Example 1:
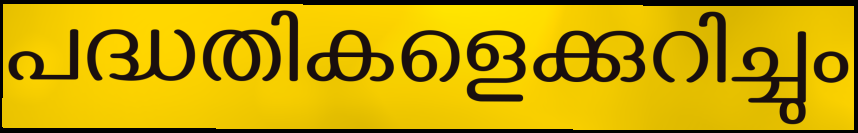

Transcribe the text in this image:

പദ്ധതികളെക്കുറിച്ചും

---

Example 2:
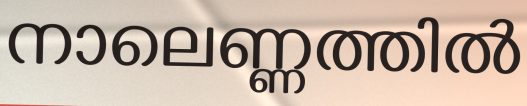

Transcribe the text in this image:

നാലെണ്ണത്തിൽ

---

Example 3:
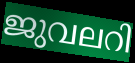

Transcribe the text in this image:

ജുവലറി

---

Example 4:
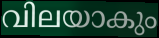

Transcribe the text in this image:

വിലയാകും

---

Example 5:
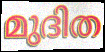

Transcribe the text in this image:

മുദിത